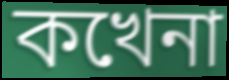
কখেনা